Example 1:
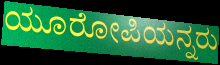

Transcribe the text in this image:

ಯೂರೋಪಿಯನ್ನರು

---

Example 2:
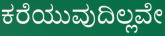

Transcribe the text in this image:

ಕರೆಯುವುದಿಲ್ಲವೇ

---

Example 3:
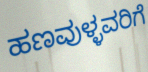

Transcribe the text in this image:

ಹಣವುಳ್ಳವರಿಗೆ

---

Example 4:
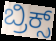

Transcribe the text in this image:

ಬ್ರಿಕ್ಸ್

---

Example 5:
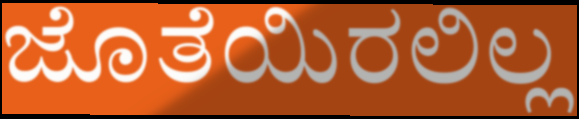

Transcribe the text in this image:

ಜೊತೆಯಿರಲಿಲ್ಲ